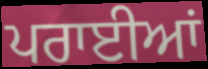
ਪਰਾਈਆਂ